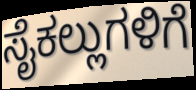
ಸೈಕಲ್ಲುಗಳಿಗೆ